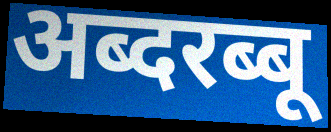
अब्दरब्बू